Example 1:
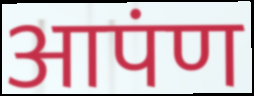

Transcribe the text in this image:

आपंण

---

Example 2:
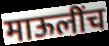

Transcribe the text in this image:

माऊलींच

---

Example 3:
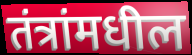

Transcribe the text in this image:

तंत्रांमधील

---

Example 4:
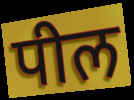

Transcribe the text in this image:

पील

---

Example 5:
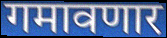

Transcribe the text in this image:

गमावणार